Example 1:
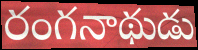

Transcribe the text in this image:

రంగనాథుడు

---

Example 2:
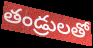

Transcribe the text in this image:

తండ్రులతో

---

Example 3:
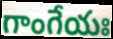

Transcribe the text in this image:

గాంగేయః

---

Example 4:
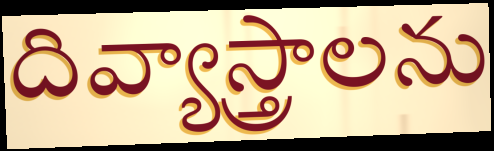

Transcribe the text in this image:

దివ్యాస్త్రాలను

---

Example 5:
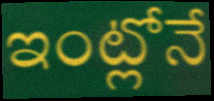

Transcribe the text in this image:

ఇంట్లోనే